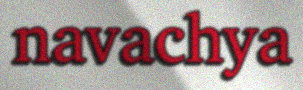
navachya